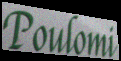
Poulomi